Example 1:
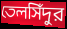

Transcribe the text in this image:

তেলসিঁদুর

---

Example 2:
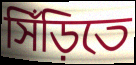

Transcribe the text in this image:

সিঁড়িতে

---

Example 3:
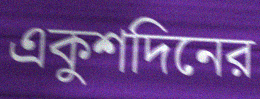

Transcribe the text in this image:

একুশদিনের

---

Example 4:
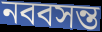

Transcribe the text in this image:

নববসন্ত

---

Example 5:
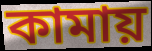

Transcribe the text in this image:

কামায়